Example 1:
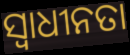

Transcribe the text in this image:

ସ୍ବାଧୀନତା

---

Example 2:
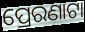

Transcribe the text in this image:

ପ୍ରେରଣାଟା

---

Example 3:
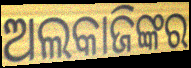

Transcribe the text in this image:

ଅଲକାଜିଙ୍କର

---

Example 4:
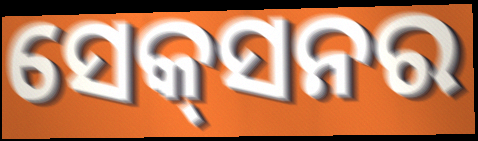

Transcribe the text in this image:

ସେକ୍‌ସନର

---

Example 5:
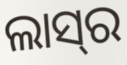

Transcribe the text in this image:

ଲାସ୍‌ର